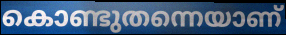
കൊണ്ടുതന്നെയാണ്